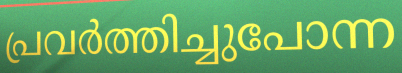
പ്രവർത്തിച്ചുപോന്ന